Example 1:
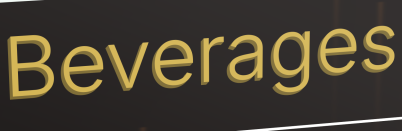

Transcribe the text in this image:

Beverages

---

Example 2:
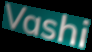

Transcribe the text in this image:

Vashi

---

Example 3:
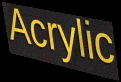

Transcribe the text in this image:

Acrylic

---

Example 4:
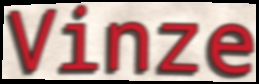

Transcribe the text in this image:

Vinze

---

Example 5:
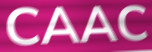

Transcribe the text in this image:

CAAC